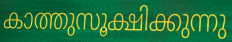
കാത്തുസൂക്ഷിക്കുന്നു